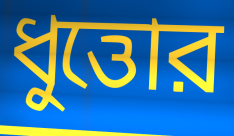
ধুত্তোর